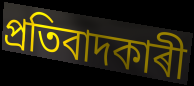
প্ৰতিবাদকাৰী